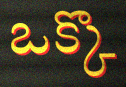
ఒక్కొ